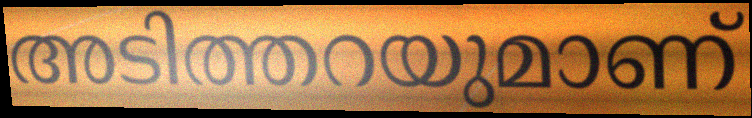
അടിത്തറയുമാണ്